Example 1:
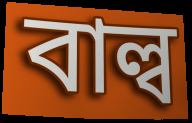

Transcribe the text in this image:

বাল্ব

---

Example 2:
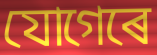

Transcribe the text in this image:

যোগেৰে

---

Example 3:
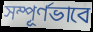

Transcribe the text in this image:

সম্পূৰ্ণভাবে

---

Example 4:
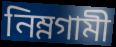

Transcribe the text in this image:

নিম্নগামী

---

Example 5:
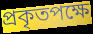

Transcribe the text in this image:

প্ৰকৃতপক্ষে